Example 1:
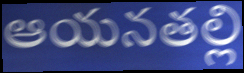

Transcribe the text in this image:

ఆయనతల్లి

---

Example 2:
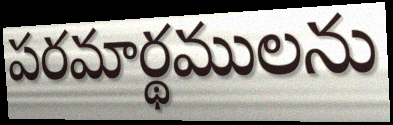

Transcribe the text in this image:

పరమార్థములను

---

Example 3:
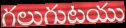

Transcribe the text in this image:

గలుగుటయు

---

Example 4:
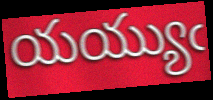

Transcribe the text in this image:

యయ్యుఁ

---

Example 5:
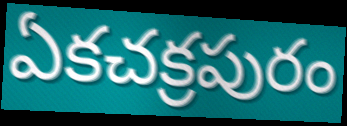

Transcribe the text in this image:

ఏకచక్రపురం